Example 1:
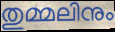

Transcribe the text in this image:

തുമ്മലിനും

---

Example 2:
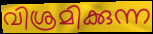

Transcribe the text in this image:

വിശ്രമിക്കുന്ന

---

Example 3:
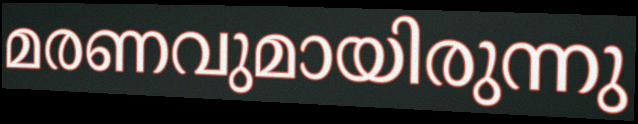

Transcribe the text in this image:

മരണവുമായിരുന്നു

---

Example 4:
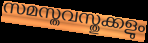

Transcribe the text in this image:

സമസ്തവസ്തുക്കളും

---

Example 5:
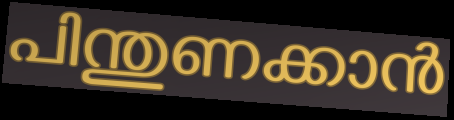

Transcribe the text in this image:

പിന്തുണക്കാൻ